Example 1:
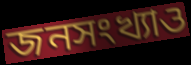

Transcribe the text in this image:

জনসংখ্যাও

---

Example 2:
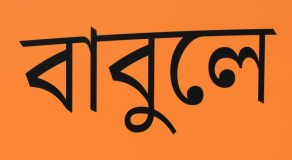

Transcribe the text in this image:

বাবুলে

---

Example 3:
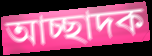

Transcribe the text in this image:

আচ্ছাদক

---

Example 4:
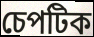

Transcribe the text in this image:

চেপটিক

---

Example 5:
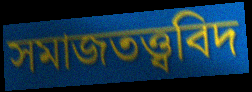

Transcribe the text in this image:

সমাজতত্ত্ববিদ